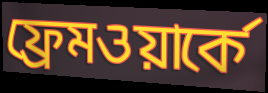
ফ্রেমওয়ার্কে